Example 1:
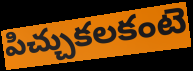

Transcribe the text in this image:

పిచ్చుకలకంటె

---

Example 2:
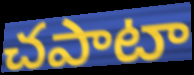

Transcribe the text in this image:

చపాటా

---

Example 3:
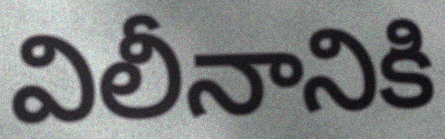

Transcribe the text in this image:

విలీనానికి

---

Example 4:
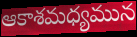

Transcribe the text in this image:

ఆకాశమధ్యమున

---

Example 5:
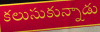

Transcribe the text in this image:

కలుసుకున్నాడు